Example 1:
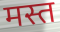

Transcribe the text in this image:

मस्‍त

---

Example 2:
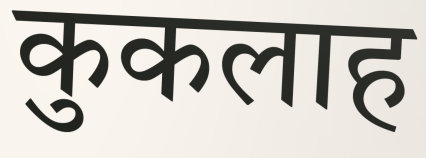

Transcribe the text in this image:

कुकलाह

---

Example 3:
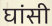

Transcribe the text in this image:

घांसी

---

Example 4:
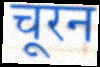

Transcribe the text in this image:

चूरन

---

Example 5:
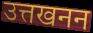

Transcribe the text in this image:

उत्तखनन